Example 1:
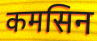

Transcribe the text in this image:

कमसिन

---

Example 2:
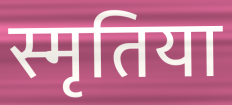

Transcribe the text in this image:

स्मृतिया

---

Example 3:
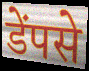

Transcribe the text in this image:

डेंपसे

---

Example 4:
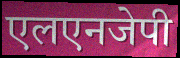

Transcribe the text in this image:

एलएनजेपी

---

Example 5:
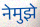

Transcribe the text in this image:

नेमुझे